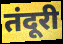
तंदूरी